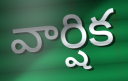
వార్షిక